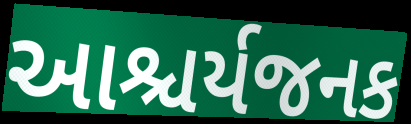
આશ્ચર્યજનક